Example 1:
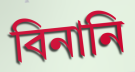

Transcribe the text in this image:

বিনানি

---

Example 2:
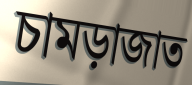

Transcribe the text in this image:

চামড়াজাত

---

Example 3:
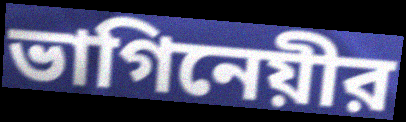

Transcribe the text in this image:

ভাগিনেয়ীর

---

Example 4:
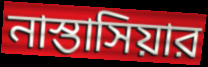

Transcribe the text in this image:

নাস্তাসিয়ার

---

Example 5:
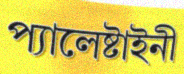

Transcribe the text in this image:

প্যালেষ্টাইনী